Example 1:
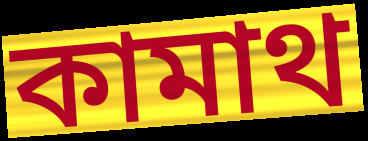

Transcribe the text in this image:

কামাথ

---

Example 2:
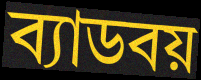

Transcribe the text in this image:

ব্যাডবয়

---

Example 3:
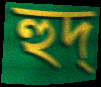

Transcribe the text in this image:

হুদ্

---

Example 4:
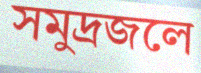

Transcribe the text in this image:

সমুদ্রজলে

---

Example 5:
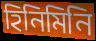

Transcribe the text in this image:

হিনিমিনি